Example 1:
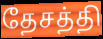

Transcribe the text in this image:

தேசத்தி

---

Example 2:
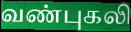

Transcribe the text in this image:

வண்புகலி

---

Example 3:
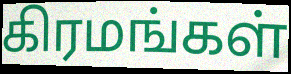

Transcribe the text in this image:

கிரமங்கள்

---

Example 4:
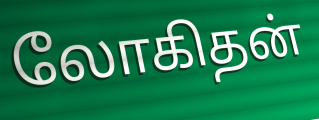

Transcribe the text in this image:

லோகிதன்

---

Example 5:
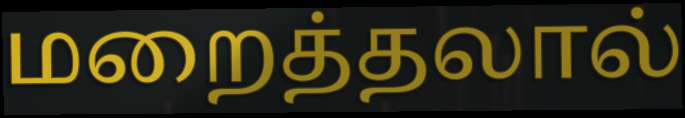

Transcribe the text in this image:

மறைத்தலால்